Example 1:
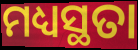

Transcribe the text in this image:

ମଧ୍ୟସ୍ଥତା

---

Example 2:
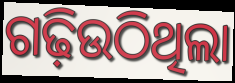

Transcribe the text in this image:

ଗଢ଼ିଉଠିଥିଲା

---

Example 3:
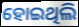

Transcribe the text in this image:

ହୋଇଥିଲି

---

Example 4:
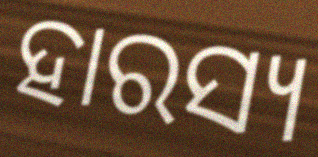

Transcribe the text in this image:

ହାରସ୍ୟ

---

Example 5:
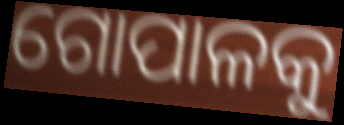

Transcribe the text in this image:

ଗୋପାଳକୁ